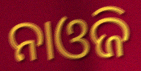
ନାଓଜି